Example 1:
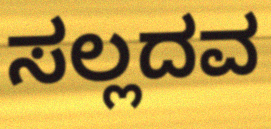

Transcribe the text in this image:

ಸಲ್ಲದವ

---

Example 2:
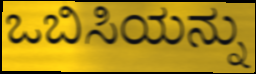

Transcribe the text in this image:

ಒಬಿಸಿಯನ್ನು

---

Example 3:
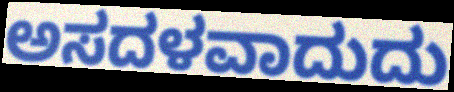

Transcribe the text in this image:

ಅಸದಳವಾದುದು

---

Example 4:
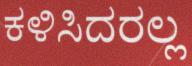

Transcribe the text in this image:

ಕಳಿಸಿದರಲ್ಲ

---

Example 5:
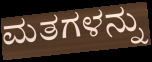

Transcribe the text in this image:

ಮತಗಳನ್ನು